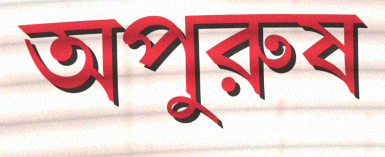
অপুরুষ